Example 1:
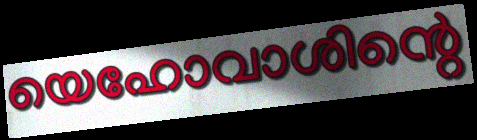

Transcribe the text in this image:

യെഹോവാശിന്റെ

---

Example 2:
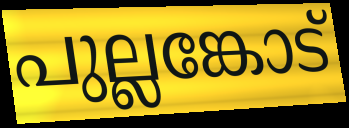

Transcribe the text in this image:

പുല്ലങ്കോട്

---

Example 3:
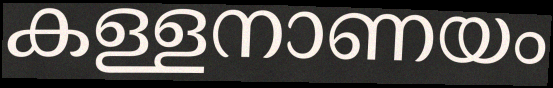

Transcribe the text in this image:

കള്ളനാണയം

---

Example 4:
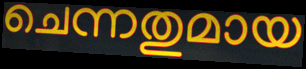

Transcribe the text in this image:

ചെന്നതുമായ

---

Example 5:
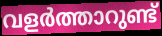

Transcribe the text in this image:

വളർത്താറുണ്ട്